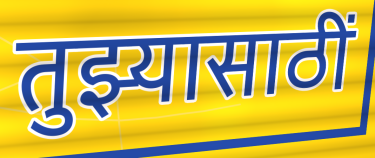
तुझ्यासाठीं